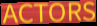
ACTORS